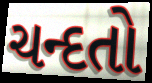
ચન્દતો